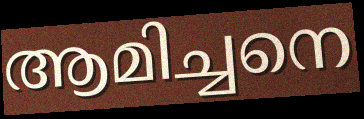
ആമിച്ചനെ